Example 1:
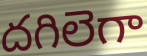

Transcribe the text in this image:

దగిలెగా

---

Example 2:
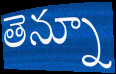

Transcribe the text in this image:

తెన్నూ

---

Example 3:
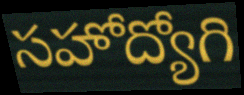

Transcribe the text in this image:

సహోద్యోగి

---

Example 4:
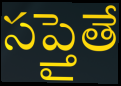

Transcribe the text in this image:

సప్తైతే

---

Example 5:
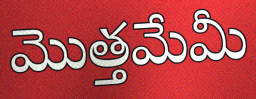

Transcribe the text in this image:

మొత్తమేమీ